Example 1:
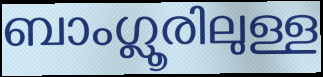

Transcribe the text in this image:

ബാംഗ്ലൂരിലുള്ള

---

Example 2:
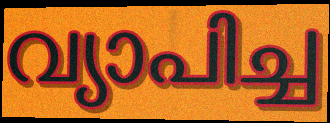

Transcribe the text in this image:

വ്യാപിച്ച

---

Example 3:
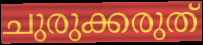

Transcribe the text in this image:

ചുരുക്കരുത്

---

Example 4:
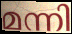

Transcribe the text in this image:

മന്നി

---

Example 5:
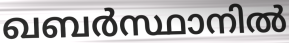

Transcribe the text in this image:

ഖബർസ്ഥാനിൽ